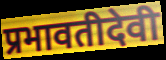
प्रभावतीदेवी